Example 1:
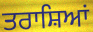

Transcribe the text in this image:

ਤਰਾਸ਼ਿਆਂ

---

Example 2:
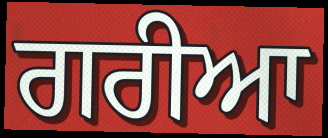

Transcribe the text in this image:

ਗਰੀਆ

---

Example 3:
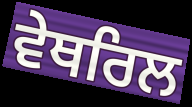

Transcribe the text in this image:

ਵੇਥਰਿਲ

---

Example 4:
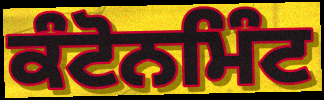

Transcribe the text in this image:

ਕੰਟੋਨਮਿੰਟ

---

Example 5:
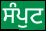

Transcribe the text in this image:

ਸੰਪੁਟ